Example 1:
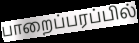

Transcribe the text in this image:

பாறைப்பரப்பில்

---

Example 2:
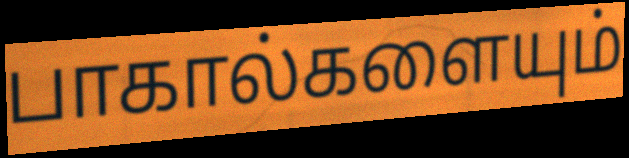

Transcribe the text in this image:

பாகால்களையும்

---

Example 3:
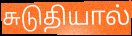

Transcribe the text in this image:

சுடுதியால்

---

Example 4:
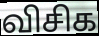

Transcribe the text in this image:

விசிக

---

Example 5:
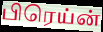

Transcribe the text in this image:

பிரெய்ன்